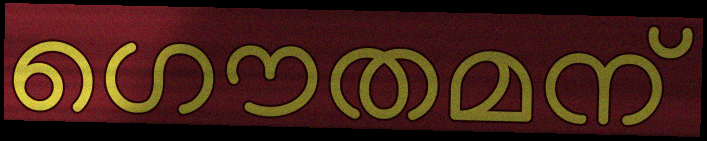
ഗൌതമന്